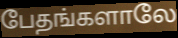
பேதங்களாலே